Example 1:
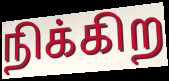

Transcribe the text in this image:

நிக்கிற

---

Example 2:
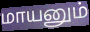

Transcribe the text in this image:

மாயனும்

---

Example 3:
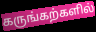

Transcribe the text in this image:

கருங்கற்களில்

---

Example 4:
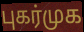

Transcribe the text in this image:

புகர்முக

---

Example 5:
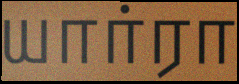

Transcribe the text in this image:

யார்ரா